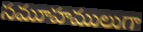
సమూహములుగా